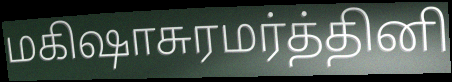
மகிஷாசுரமர்த்தினி